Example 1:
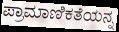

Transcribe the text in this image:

ಪ್ರಾಮಾಣಿಕತೆಯನ್ನ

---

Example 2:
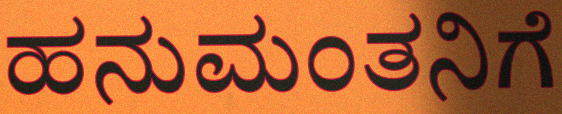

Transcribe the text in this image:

ಹನುಮಂತನಿಗೆ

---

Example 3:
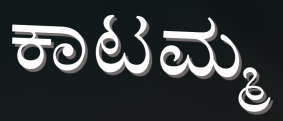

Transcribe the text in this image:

ಕಾಟಮ್ಮ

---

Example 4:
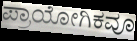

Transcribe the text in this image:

ಪ್ರಾಯೋಗಿಕವೂ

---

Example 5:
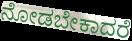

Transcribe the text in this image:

ನೋಡಬೇಕಾದರೆ